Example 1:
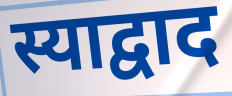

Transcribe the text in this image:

स्याद्वाद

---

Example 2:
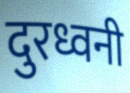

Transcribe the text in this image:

दुरध्वनी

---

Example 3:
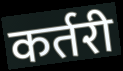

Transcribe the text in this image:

कर्तरी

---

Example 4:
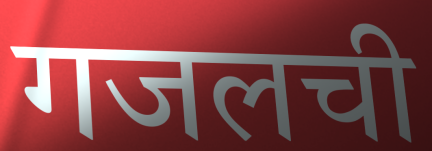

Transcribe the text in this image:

गजलची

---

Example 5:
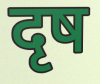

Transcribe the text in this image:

दृष